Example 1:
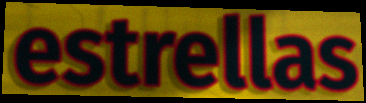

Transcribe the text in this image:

estrellas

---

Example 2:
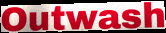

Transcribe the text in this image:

Outwash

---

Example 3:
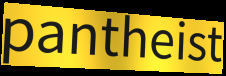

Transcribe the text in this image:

pantheist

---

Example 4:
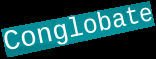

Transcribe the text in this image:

Conglobate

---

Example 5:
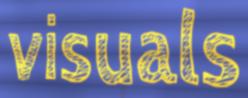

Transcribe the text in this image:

visuals